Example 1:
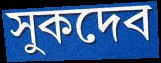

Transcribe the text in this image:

সুকদেব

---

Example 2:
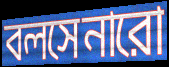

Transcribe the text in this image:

বলসেনারো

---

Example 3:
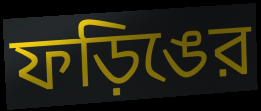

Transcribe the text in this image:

ফড়িঙের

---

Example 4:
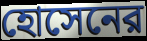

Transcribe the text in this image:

হোসেনের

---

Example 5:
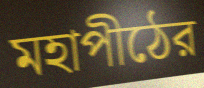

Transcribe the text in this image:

মহাপীঠের